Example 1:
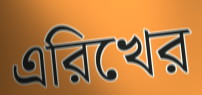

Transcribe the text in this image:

এরিখের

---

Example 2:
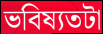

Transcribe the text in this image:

ভবিষ্যতটা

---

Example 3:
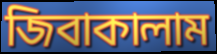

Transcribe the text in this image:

জিবাকালাম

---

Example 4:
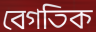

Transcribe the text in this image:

বেগতিক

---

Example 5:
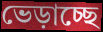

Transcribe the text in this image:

ভেড়াচ্ছে